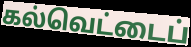
கல்வெட்டைப்